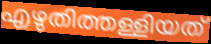
എഴുതിത്തള്ളിയത്